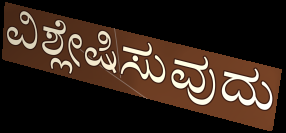
ವಿಶ್ಲೇಷಿಸುವುದು